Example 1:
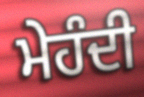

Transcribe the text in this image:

ਮੇਹੰਦੀ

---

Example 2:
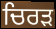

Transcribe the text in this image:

ਚਿਰੜ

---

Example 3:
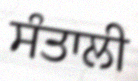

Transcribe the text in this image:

ਸੰਤਾਲੀ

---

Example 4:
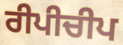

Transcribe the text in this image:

ਰੀਪੀਚੀਪ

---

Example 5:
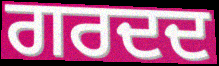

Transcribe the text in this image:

ਗਰਦਦ